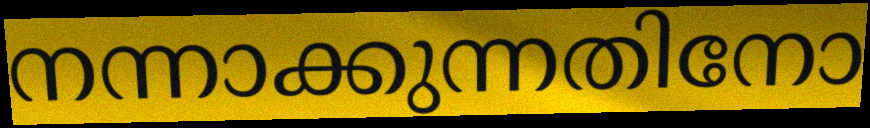
നന്നാക്കുന്നതിനോ